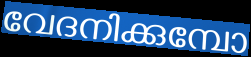
വേദനിക്കുമ്പോ